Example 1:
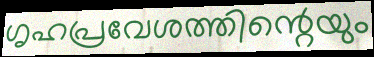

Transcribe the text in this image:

ഗൃഹപ്രവേശത്തിന്റെയും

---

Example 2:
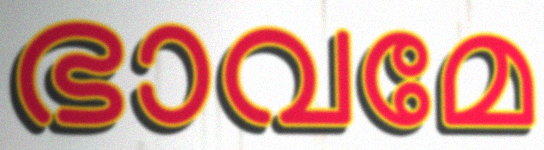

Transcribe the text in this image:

ഭാവമേ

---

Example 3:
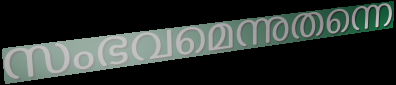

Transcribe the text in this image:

സംഭവമെന്നുതന്നെ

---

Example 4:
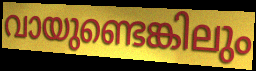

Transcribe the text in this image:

വായുണ്ടെങ്കിലും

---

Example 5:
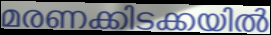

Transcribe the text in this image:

മരണക്കിടക്കയിൽ